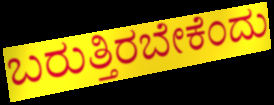
ಬರುತ್ತಿರಬೇಕೆಂದು